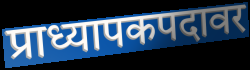
प्राध्यापकपदावर